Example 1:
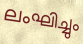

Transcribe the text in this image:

ലംഘിച്ചും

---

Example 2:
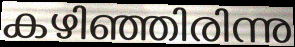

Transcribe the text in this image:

കഴിഞ്ഞിരിന്നു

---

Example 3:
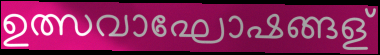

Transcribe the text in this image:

ഉത്സവാഘോഷങ്ങള്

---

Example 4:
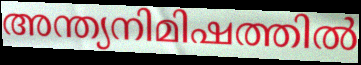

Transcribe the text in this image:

അന്ത്യനിമിഷത്തിൽ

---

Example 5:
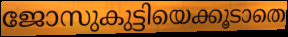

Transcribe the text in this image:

ജോസുകുട്ടിയെക്കൂടാതെ